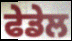
ਫੇਡੇਲ